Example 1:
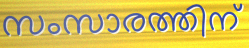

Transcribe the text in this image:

സംസാരത്തിന്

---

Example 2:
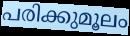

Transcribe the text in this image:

പരിക്കുമൂലം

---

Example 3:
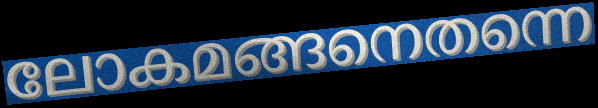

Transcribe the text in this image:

ലോകമങ്ങനെതന്നെ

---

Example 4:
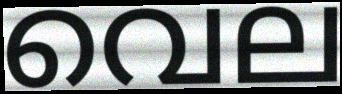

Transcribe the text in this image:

വെല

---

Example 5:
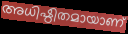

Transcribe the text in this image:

അധിഷ്ഠിതമായാണ്